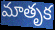
మాతృక